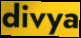
divya